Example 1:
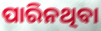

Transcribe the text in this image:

ପାରିନଥିବା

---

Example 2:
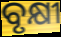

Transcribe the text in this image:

ବୃକ୍ଷୀ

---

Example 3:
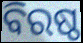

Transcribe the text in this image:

ବିରଷ୍ଠ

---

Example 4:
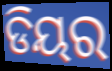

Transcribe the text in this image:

ଡିୟର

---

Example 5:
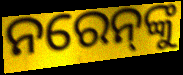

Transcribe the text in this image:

ନରେନ୍‍ଙ୍କୁ